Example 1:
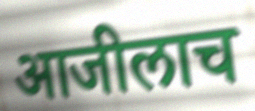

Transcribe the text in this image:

आजीलाच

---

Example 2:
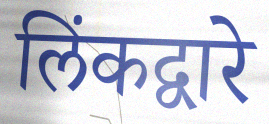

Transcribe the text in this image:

लिंकद्वारे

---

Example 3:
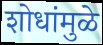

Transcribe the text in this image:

शोधांमुळे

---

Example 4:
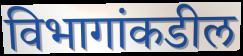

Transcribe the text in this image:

विभागांकडील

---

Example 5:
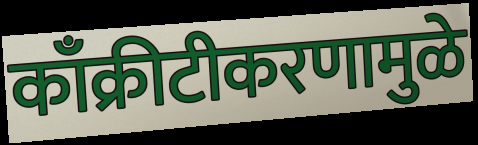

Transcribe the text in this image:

काँक्रीटीकरणामुळे